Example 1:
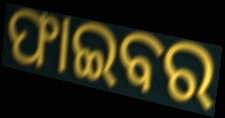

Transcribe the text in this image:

ଫାଇବର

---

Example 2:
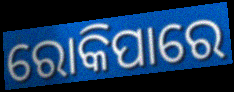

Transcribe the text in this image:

ରୋକିପାରେ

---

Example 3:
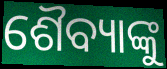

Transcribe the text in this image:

ଶୈବ୍ୟାଙ୍କୁ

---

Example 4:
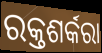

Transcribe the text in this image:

ରକ୍ତଶର୍କରା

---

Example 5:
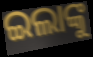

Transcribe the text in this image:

ଇଲାଙ୍କୁ